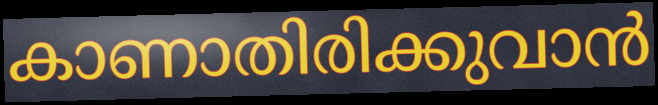
കാണാതിരിക്കുവാൻ